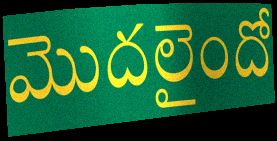
మొదలైందో